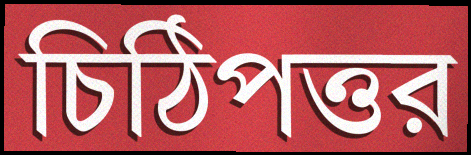
চিঠিপত্তর